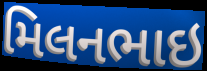
મિલનભાઇ